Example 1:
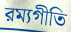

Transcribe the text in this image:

রম্যগীতি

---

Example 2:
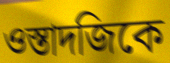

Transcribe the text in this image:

ওস্তাদজিকে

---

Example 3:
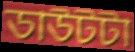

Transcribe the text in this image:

ডাউটটা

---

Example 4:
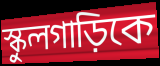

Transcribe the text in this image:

স্কুলগাড়িকে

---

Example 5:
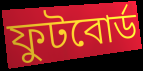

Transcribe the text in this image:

ফুটবোর্ড